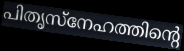
പിതൃസ്നേഹത്തിന്റെ